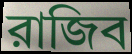
রাজিব